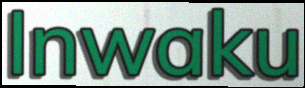
Inwaku